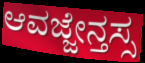
ಆವಜ್ಜೇನ್ತಸ್ಸ